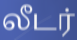
லீடர்